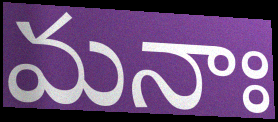
మనాః